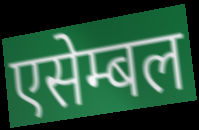
एसेम्बल